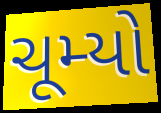
ચૂમ્યો